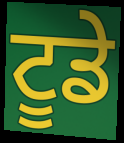
ਟੂਡੇ